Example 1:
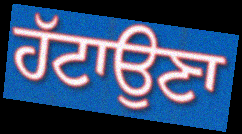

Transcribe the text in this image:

ਹੱਟਾਉਣਾ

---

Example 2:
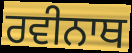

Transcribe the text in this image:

ਰਵੀਨਾਥ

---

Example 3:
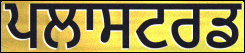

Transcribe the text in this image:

ਪਲਾਸਟਰਡ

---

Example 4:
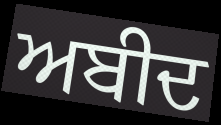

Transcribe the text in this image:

ਅਬੀਦ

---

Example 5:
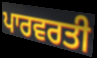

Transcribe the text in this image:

ਪਾਰਵਰਤੀ